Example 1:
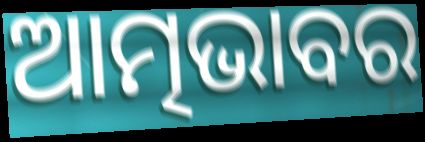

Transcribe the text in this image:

ଆତ୍ମଭାବର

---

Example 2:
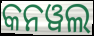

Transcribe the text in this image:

କନୱଲ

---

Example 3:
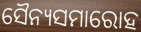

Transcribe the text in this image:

ସୈନ୍ୟସମାରୋହ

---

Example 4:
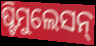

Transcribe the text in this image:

ଷ୍ଟିମୁଲେସନ୍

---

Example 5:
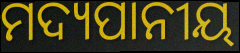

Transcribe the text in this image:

ମଦ୍ୟପାନୀୟ